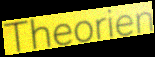
Theorien